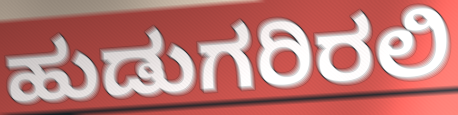
ಹುಡುಗರಿರಲಿ